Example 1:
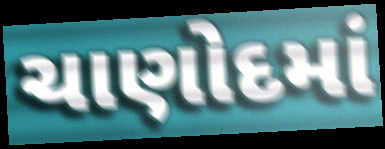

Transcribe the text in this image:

ચાણોદમાં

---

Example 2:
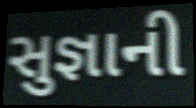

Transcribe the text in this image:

સુજ્ઞાની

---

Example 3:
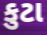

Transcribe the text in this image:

કુટા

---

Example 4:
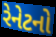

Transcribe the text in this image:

રેનેટનો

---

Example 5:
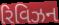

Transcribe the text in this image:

રિવિઝન